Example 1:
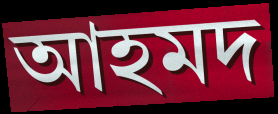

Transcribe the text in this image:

আহমদ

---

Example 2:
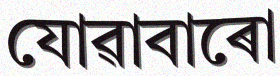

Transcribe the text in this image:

যোৱাবাৰো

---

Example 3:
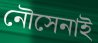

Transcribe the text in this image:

নৌসেনাই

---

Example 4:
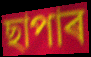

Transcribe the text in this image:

ছাপাৰ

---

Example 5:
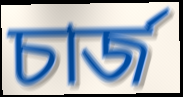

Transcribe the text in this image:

চাৰ্জ